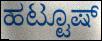
ಹಟ್ಟೂಷ್